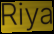
Riya